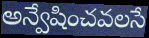
అన్వేషించవలసే